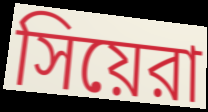
সিয়েরা